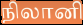
நிலானி